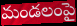
మండలంపై